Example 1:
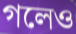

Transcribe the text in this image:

গলেও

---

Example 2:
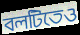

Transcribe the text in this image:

বলটিতেও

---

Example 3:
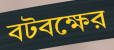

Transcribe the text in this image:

বটবক্ষের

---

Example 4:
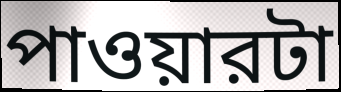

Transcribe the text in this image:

পাওয়ারটা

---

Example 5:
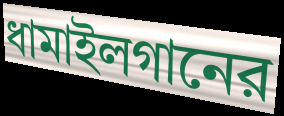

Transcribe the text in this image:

ধামাইলগানের